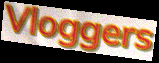
Vloggers